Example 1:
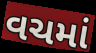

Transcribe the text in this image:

વચમાં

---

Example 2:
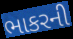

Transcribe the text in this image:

ભાકરની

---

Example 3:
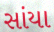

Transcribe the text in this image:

સાંયા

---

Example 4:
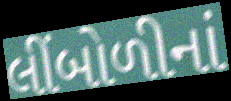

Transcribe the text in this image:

લીંબોળીનાં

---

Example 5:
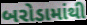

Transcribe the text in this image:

બરોડામાંથી